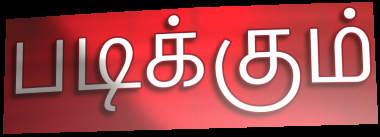
படிக்கும்